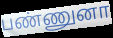
பண்ணுனா